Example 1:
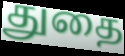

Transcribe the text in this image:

துதை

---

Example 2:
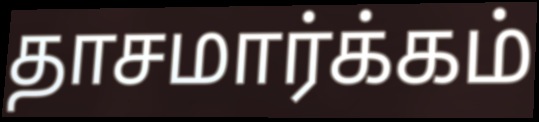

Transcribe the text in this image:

தாசமார்க்கம்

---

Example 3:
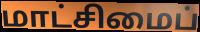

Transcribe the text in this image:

மாட்சிமைப்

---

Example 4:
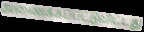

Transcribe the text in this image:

அணைக்கப்பட்டுவிட்டது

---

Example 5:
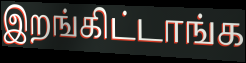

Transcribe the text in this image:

இறங்கிட்டாங்க